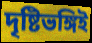
দৃষ্টিভঙ্গিই